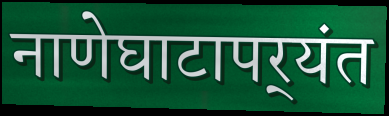
नाणेघाटापर्यंत